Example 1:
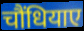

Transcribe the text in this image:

चौंधियाए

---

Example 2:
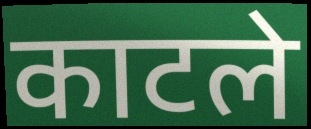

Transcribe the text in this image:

काटले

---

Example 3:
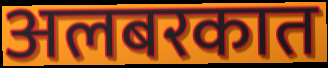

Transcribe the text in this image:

अलबरकात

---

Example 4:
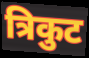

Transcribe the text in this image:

त्रिकुट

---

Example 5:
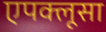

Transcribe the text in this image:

एपक्लूसा